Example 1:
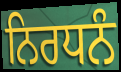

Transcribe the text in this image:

ਨਿਰਧਨੰ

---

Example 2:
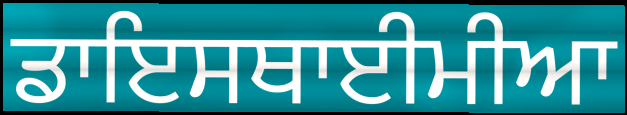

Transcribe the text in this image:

ਡਾਇਸਥਾਈਮੀਆ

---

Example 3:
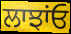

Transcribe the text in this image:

ਲਾਝਾਂਓ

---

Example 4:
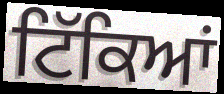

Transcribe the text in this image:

ਟਿੱਕਿਆਂ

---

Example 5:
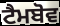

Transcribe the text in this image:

ਟੈਮਬੋਵ